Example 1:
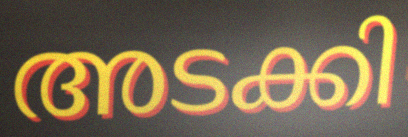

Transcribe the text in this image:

അടക്കി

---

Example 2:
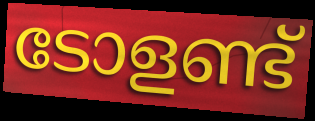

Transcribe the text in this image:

ടോളണ്ട്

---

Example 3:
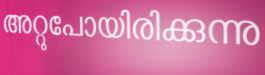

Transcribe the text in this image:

അറ്റുപോയിരിക്കുന്നു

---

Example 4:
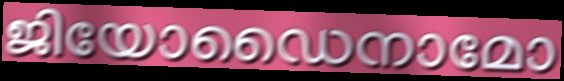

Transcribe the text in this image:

ജിയോഡൈനാമോ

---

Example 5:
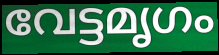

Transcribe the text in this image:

വേട്ടമൃഗം